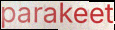
parakeet